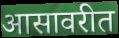
आसावरीत